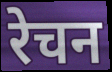
रेचन